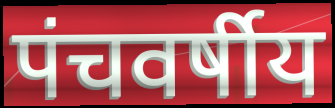
पंचवर्षीय